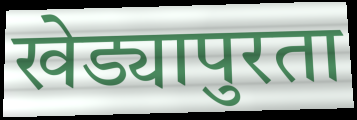
खेड्यापुरता